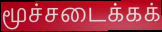
மூச்சடைக்கக்